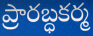
ప్రారబ్ధకర్మ